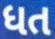
ધત